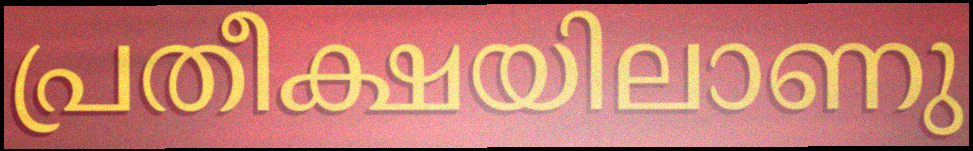
പ്രതീക്ഷയിലാണു